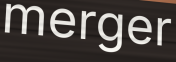
merger